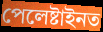
পেলেষ্টাইনত